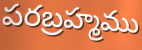
పరబ్రహ్మము